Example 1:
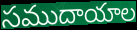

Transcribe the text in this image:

సముదాయాల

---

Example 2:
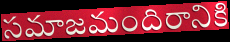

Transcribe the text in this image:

సమాజమందిరానికి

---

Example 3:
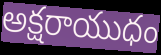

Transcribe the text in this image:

అక్షరాయుధం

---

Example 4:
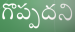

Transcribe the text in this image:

గొప్పదని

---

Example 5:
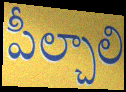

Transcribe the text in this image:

పీల్చాలి